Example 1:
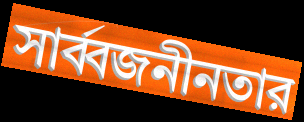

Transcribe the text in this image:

সার্ব্বজনীনতার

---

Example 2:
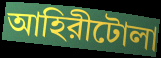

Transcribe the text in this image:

আহিরীটোলা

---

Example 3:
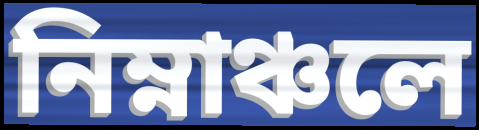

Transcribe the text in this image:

নিম্নাঞ্চলে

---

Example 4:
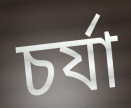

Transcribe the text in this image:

চর্যা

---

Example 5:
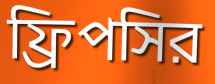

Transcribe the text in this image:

ফ্রিপসির